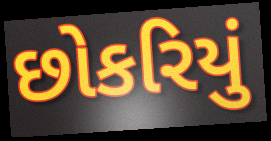
છોકરિયું